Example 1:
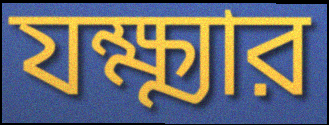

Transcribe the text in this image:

যক্ষ্মার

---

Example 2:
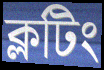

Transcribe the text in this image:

ক্লটিং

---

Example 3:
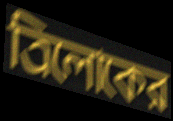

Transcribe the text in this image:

ত্রিলোকের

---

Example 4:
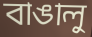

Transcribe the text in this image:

বাঙালু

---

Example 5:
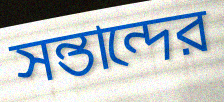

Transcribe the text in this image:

সন্তান্দের